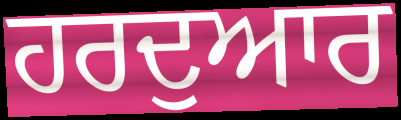
ਹਰਦੁਆਰ